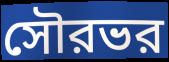
সৌরভর